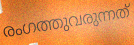
രംഗത്തുവരുന്നത്